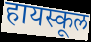
हायस्कूल